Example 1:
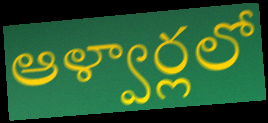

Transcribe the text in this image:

ఆళ్వార్లలో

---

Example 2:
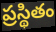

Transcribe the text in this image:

ప్రస్థితం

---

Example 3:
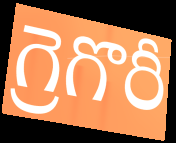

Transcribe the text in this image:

గ్రెగొరీ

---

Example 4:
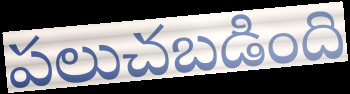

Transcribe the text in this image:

పలుచబడింది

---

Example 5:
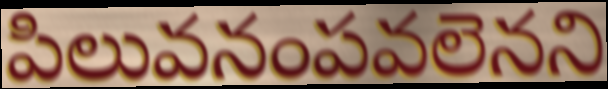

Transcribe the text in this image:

పిలువనంపవలెనని